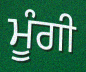
ਮੂੰਗੀ